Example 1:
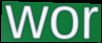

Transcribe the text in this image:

wor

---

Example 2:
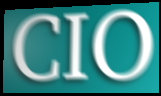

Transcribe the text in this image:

CIO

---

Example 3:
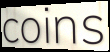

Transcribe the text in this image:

coins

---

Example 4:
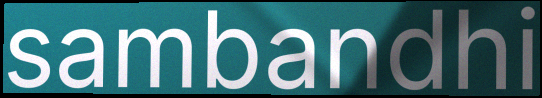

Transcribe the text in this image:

sambandhi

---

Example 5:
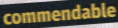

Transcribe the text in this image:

commendable